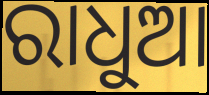
ରାଧୁଆ